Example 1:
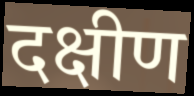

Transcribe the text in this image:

दक्षीण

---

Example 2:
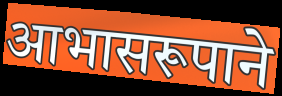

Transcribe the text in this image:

आभासरूपाने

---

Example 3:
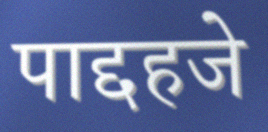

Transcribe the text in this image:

पाद्दहजे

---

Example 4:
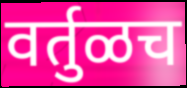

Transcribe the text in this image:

वर्तुळच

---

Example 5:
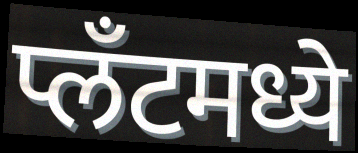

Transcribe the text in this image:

प्लँटमध्ये